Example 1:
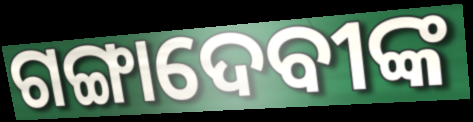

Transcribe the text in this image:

ଗଙ୍ଗାଦେବୀଙ୍କ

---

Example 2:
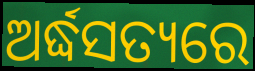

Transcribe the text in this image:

ଅର୍ଦ୍ଧସତ୍ୟରେ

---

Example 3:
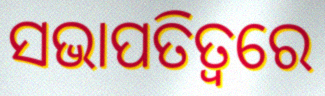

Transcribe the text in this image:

ସଭାପତିତ୍ଵରେ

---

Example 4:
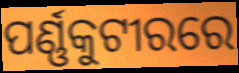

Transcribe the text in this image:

ପର୍ଣ୍ଣକୁଟୀରରେ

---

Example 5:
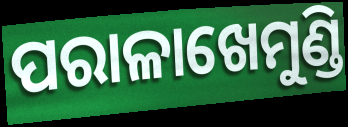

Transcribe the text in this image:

ପରାଳାଖେମୁଣ୍ଡି